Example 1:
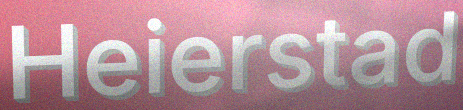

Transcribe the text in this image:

Heierstad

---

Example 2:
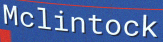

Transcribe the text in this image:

Mclintock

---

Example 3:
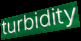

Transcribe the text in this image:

turbidity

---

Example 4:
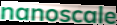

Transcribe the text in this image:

nanoscale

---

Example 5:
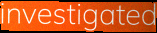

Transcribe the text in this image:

investigated